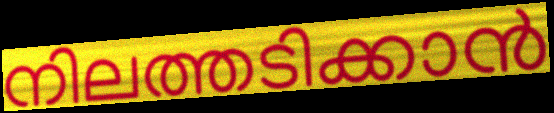
നിലത്തടിക്കാൻ